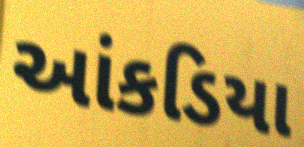
આંકડિયા